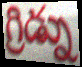
గ్రిడ్ను